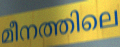
മീനത്തിലെ